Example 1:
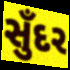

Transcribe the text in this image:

સુઁદર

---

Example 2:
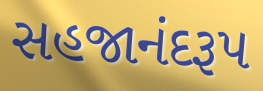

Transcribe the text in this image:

સહજાનંદરૂપ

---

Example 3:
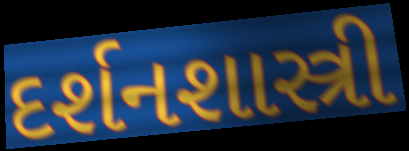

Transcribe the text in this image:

દર્શનશાસ્ત્રી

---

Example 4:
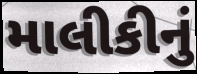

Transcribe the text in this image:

માલીકીનું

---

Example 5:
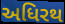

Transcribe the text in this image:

અધિરથ